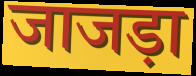
जाजड़ा